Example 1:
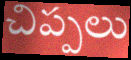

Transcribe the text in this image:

చిప్పలు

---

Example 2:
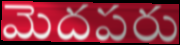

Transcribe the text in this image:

మెదపరు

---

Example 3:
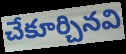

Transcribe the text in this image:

చేకూర్చినవి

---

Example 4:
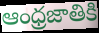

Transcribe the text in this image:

ఆంధ్రజాతికి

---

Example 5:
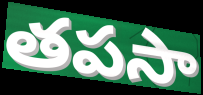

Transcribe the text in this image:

తపసా